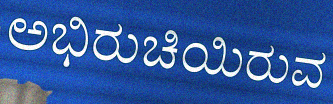
ಅಭಿರುಚಿಯಿರುವ